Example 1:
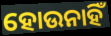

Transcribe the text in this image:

ହୋଉନାହିଁ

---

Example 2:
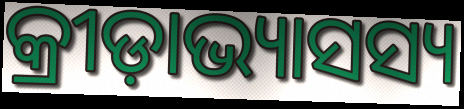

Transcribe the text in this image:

କ୍ରୀଡ଼ାଭ୍ୟାସସ୍ୟ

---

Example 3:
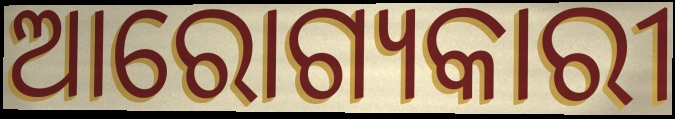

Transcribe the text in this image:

ଆରୋଗ୍ୟକାରୀ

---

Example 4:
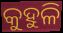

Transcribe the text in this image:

କୁହୁଳି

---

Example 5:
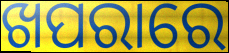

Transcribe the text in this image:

ଖପରାରେ